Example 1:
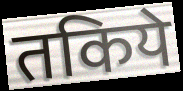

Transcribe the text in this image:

तकिये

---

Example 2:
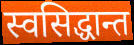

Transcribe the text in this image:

स्वसिद्धान्त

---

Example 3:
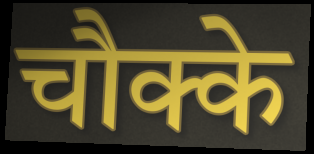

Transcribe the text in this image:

चौक्के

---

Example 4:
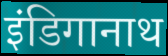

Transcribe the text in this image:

इंडिगानाथ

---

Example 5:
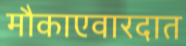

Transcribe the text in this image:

मौकाएवारदात